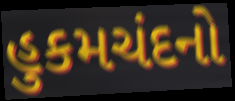
હુકમચંદનો